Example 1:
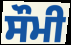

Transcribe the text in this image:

ਸੌਮੀ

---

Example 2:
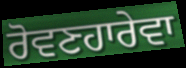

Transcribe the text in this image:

ਰੋਵਣਹਾਰੇਵਾ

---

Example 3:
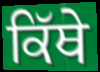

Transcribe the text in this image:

ਕਿੱਥੇ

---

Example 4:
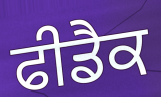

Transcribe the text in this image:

ਫੀਡੈਕ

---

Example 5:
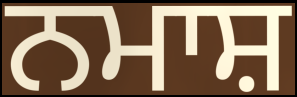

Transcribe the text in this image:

ਨਮਾਸ਼